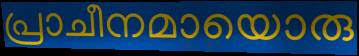
പ്രാചീനമായൊരു